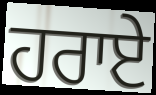
ਹਰਾਏ